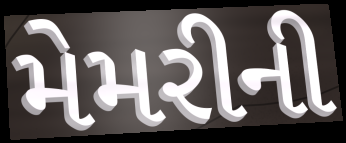
મેમરીની